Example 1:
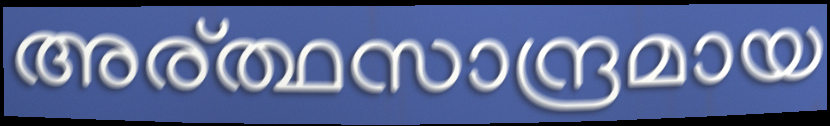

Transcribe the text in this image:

അര്ത്ഥസാന്ദ്രമായ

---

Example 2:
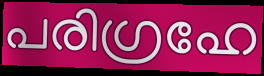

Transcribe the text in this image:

പരിഗ്രഹേ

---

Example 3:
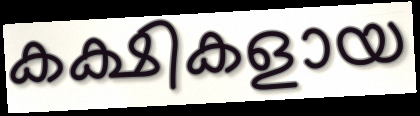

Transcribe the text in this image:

കക്ഷികളായ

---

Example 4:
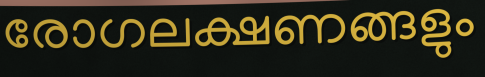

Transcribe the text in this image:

രോഗലക്ഷണങ്ങളും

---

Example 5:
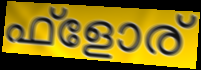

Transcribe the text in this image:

ഫ്ളോര്